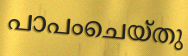
പാപംചെയ്തു